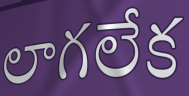
లాగలేక